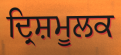
ਦ੍ਰਿਸ਼ਮੂਲਕ